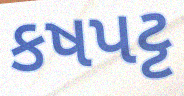
કષપટ્ટ